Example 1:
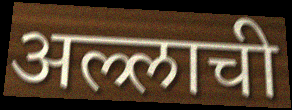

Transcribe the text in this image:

अल्लाची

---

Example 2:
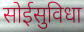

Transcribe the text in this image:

सोईसुविधा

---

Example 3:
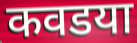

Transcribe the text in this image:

कवडया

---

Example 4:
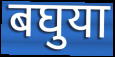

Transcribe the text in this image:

बघुया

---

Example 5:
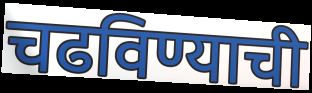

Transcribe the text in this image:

चढविण्याची